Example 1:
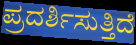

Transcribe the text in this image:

ಪ್ರದರ್ಶಿಸುತ್ತಿದೆ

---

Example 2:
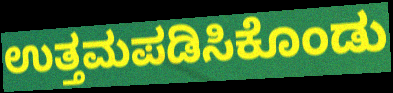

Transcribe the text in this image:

ಉತ್ತಮಪಡಿಸಿಕೊಂಡು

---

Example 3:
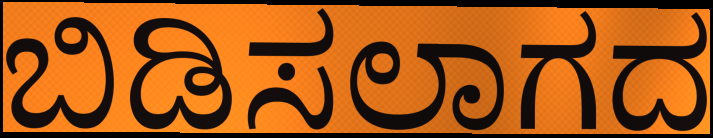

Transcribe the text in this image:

ಬಿಡಿಸಲಾಗದ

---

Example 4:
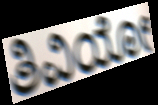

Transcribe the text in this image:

ತಿವಿಯೋ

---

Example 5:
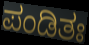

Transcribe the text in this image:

ಪಂಡಿತಃ